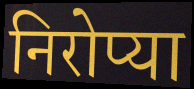
निरोप्या